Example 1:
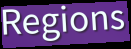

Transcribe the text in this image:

Regions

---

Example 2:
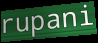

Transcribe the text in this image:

rupani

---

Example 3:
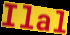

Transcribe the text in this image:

Ilal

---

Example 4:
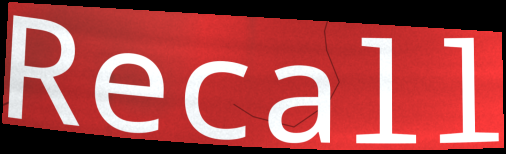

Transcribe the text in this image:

Recall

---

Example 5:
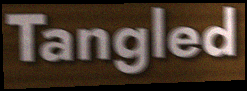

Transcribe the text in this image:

Tangled